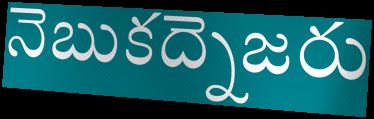
నెబుకద్నెజరు